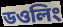
ডওলিং